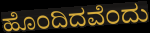
ಹೊಂದಿದವೆಂದು